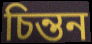
চিন্তন